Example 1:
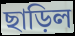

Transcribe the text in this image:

ছাড়িল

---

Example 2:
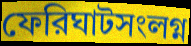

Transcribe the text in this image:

ফেরিঘাটসংলগ্ন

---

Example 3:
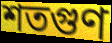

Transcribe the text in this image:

শতগুণ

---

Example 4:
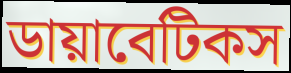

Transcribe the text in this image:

ডায়াবেটিকস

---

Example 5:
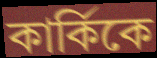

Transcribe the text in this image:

কার্কিকে